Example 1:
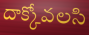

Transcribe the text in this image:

దాక్కోవలసి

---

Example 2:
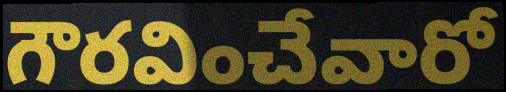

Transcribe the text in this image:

గౌరవించేవారో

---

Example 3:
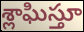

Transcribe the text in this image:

శ్లాఘిస్తూ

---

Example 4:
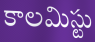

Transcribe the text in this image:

కాలమిస్టు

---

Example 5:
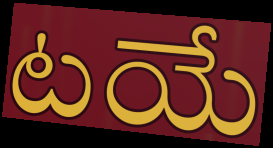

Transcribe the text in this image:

టయే